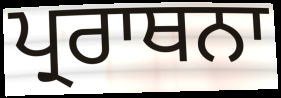
ਪ੍ਰਰਾਥਨਾ